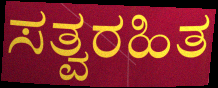
ಸತ್ವರಹಿತ